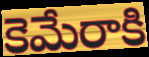
కెమేరాకి